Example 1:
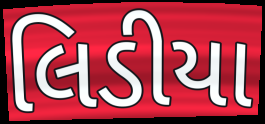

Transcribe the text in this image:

લિડીયા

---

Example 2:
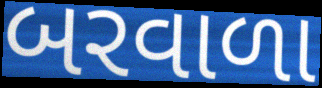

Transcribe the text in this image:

બરવાળા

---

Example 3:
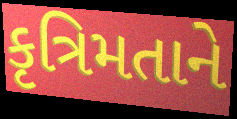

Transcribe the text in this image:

કૃત્રિમતાને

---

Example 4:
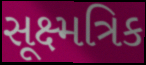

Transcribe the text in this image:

સૂક્ષ્મત્રિક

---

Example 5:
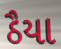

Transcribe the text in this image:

ઠૈયા